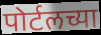
पोर्टलच्या